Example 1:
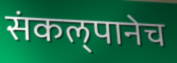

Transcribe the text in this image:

संकल्पानेच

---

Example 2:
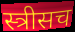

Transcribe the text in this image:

स्त्रीसच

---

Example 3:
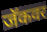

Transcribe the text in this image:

जॅकवर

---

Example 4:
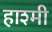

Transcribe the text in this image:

हाश्मी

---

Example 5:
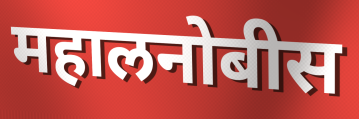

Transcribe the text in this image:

महालनोबीस